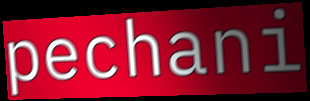
pechani